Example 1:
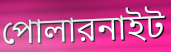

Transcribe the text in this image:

পোলারনাইট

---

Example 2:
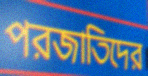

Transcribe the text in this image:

পরজাতিদের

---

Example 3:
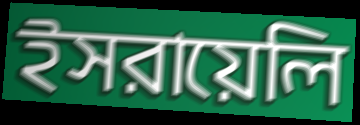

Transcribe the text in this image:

ইসরায়েলি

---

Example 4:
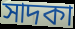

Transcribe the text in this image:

সাদকা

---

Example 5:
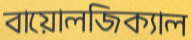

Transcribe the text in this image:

বায়োলজিক্যাল